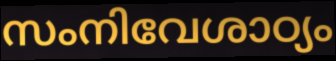
സംനിവേശാഠ്യം